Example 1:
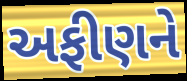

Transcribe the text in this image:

અફીણને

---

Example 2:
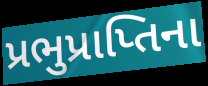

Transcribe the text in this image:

પ્રભુપ્રાપ્તિના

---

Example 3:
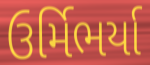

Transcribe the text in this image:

ઉર્મિભર્યા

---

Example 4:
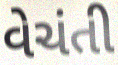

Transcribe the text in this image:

વેચંતી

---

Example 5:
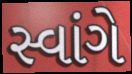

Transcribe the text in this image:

સ્વાંગે